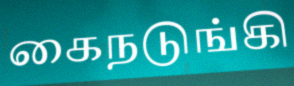
கைநடுங்கி